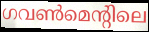
ഗവൺമെന്റിലെ